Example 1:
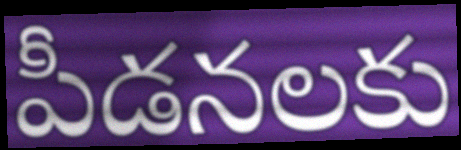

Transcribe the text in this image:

పీడనలకు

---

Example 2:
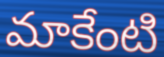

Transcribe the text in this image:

మాకేంటి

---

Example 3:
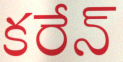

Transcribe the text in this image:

కరేన్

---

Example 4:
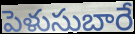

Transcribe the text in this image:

పెళుసుబారే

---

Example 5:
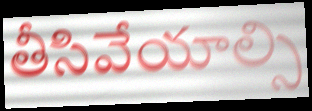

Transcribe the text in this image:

తీసివేయాల్సి